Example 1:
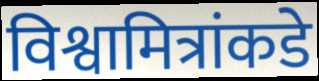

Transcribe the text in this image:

विश्वामित्रांकडे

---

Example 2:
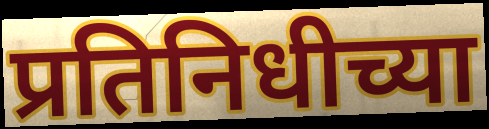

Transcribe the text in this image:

प्रतिनिधीच्या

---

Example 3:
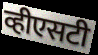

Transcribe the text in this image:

व्हीएसटी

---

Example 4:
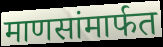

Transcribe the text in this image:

माणसांमार्फत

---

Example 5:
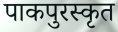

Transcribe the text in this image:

पाकपुरस्कृत